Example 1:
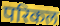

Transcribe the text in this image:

परिकल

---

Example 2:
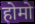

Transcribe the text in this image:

होमो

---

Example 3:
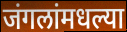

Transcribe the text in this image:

जंगलांमधल्या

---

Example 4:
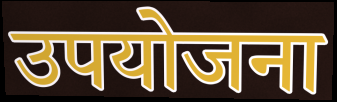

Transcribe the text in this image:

उपयोजना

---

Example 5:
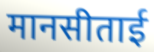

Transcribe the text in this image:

मानसीताई